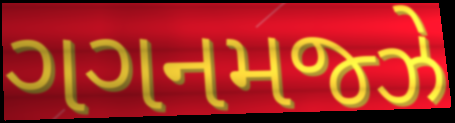
ગગનમજ્ઝે